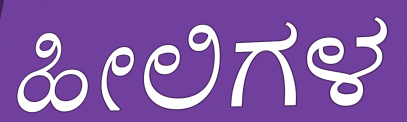
ಹೀಲಿಗಳ